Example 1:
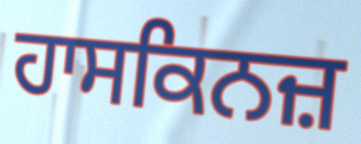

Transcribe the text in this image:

ਹਾਸਕਿਨਜ਼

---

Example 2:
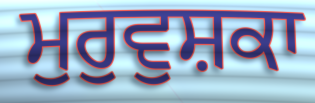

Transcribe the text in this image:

ਮੁਰੁਵੁਸ਼ਕਾ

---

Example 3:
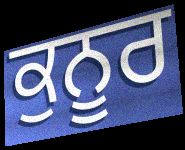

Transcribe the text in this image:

ਕੁਨੂਰ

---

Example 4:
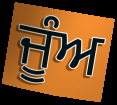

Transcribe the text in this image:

ਜੂੰਅ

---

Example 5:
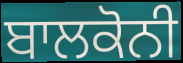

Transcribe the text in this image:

ਬਾਲਕੋਨੀ